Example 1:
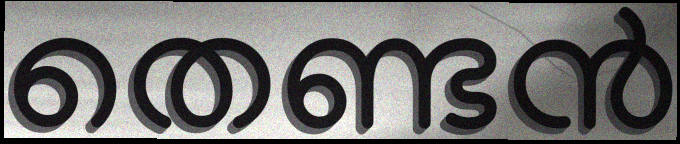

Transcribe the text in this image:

തെണ്ടൻ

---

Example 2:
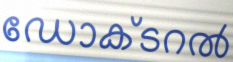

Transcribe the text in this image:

ഡോക്ടറൽ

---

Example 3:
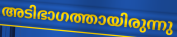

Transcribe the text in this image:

അടിഭാഗത്തായിരുന്നു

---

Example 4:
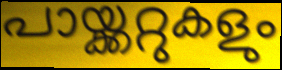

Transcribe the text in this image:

പായ്ക്കറ്റുകളും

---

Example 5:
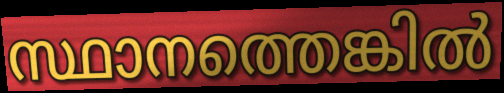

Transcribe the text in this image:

സ്ഥാനത്തെങ്കിൽ